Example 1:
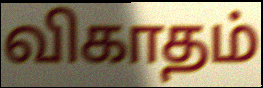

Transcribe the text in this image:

விகாதம்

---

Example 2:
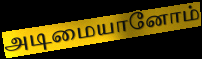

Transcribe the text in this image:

அடிமையானோம்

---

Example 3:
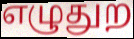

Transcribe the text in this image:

எழுதுற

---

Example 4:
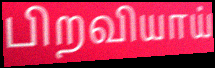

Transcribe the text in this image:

பிறவியாய்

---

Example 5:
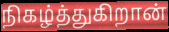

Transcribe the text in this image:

நிகழ்த்துகிறான்